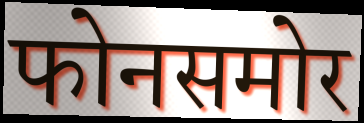
फोनसमोर